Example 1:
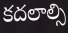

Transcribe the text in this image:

కదలాల్సి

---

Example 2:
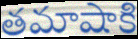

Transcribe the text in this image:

తమాషాకి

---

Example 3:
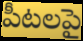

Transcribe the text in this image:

పీటలపై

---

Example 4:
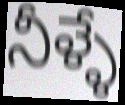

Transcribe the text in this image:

నీళ్ళే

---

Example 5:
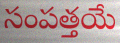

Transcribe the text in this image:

సంపత్తయే